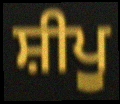
ਸ਼ੀਪੂ